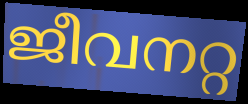
ജീവനറ്റ